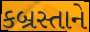
કબ્રસ્તાને